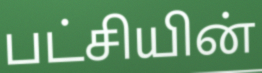
பட்சியின்